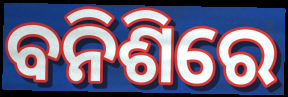
ବନିଶିରେ